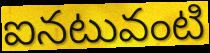
ఐనటువంటి